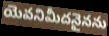
యెవనిమీదనైనను